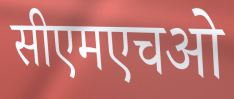
सीएमएचओ